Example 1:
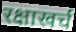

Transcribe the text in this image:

रक्षाखर्च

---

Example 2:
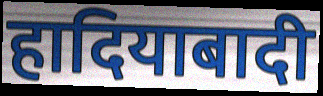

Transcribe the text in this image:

हादियाबादी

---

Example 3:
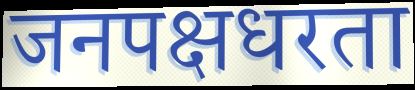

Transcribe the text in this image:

जनपक्षधरता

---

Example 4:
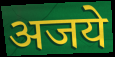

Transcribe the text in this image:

अजये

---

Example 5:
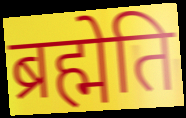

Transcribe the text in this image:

ब्रह्मेति